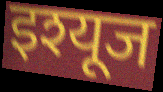
इश्यूज